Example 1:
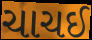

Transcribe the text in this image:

ચાચઈ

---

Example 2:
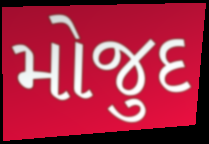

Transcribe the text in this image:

મોજુદ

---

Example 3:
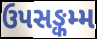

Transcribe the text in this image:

ઉપસઙ્કમ્મ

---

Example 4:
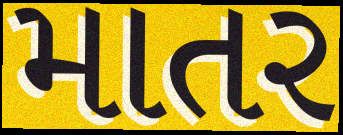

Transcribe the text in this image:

માતર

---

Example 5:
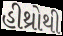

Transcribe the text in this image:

હીથ્રોથી